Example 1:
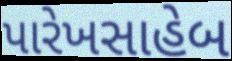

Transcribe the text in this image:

પારેખસાહેબ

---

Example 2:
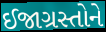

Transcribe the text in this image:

ઈજાગ્રસ્તોને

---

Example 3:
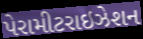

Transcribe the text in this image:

પેરામીટરાઇઝેશન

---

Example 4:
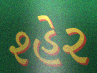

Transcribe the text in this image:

શ્હેર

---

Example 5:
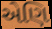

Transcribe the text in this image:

એણિ